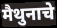
मैथुनाचे